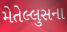
મેતેલ્લુસના